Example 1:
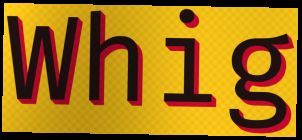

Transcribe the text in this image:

Whig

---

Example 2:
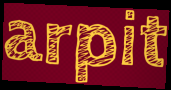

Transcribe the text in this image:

arpit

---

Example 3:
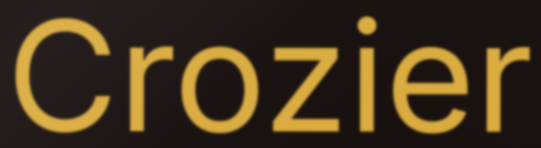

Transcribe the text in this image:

Crozier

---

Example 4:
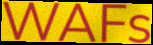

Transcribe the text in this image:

WAFs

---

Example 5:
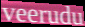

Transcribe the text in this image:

veerudu